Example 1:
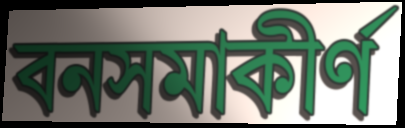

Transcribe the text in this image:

বনসমাকীর্ণ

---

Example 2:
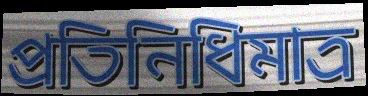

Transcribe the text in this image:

প্রতিনিধিমাত্র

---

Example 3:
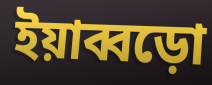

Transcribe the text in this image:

ইয়াব্বড়ো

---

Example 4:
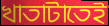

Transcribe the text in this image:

খাতাটাতেই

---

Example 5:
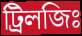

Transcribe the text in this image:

ট্রিলজিঃ